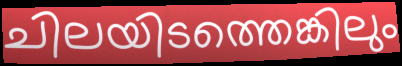
ചിലയിടത്തെങ്കിലും